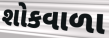
શોકવાળા